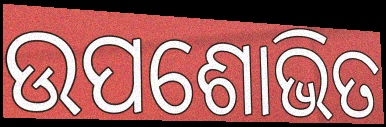
ଉପଶୋଭିତ